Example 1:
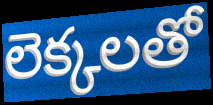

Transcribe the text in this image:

లెక్కలతో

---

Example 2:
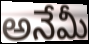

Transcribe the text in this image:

అనేమీ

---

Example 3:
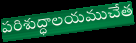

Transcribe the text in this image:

పరిశుద్ధాలయముచేత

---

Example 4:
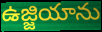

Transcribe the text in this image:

ఉజ్జియాను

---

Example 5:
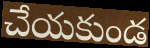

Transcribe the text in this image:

చేయకుండ